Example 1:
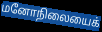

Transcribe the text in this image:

மனோநிலையைக்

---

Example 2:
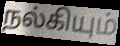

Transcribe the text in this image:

நல்கியும்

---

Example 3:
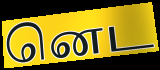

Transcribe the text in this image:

னெட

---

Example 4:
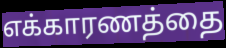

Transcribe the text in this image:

எக்காரணத்தை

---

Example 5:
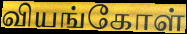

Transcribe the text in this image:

வியங்கோள்